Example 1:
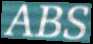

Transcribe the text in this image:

ABS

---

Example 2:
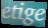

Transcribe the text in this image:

etige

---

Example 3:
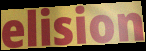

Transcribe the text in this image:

elision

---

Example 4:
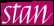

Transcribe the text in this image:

stan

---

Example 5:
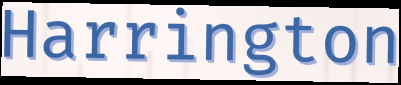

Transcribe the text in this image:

Harrington